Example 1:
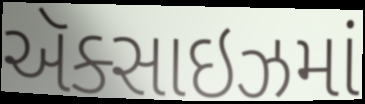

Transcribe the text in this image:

ઍક્સાઇઝમાં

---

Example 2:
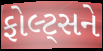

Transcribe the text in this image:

ફોલ્ટ્સને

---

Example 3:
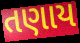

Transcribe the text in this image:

તણાય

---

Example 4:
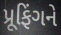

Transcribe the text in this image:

પ્રૂફિંગને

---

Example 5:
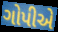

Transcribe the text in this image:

ગોપીએ